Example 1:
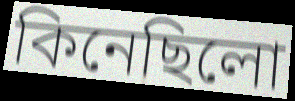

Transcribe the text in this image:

কিনেছিলো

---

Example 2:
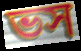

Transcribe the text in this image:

ভস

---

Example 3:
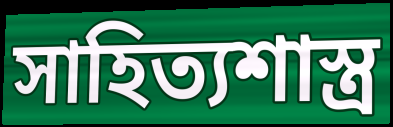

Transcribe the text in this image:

সাহিত্যশাস্ত্র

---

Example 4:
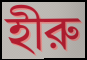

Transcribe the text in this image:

হীরু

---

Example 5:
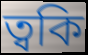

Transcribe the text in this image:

ত্বকি